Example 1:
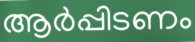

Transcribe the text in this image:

ആർപ്പിടണം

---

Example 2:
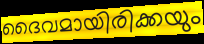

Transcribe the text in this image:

ദൈവമായിരിക്കയും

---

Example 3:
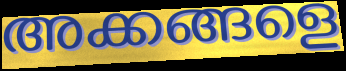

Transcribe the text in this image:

അക്കങ്ങളെ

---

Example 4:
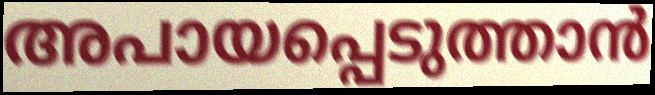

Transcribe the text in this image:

അപായപ്പെടുത്താൻ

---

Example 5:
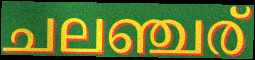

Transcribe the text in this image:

ചലഞ്ചര്